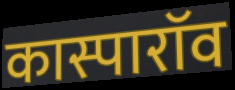
कास्पारॉव